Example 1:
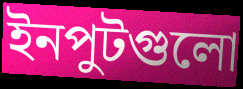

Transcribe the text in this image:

ইনপুটগুলো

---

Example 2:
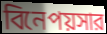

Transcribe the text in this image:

বিনেপয়সার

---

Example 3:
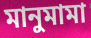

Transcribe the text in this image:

মানুমামা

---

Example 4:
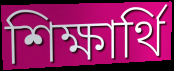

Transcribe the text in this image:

শিক্ষার্থি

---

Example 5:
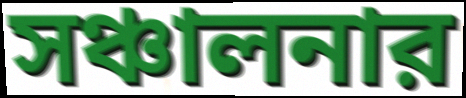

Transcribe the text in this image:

সঞ্চালনার